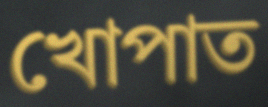
খোপাত